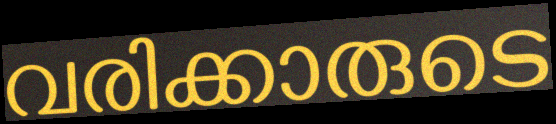
വരിക്കാരുടെ